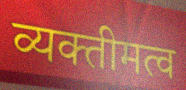
व्यक्तीमत्व